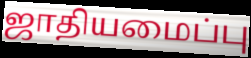
ஜாதியமைப்பு